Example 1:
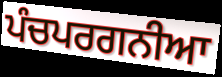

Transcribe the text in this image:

ਪੰਚਪਰਗਨੀਆ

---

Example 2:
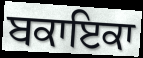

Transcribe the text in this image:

ਬਕਾਇਕਾ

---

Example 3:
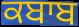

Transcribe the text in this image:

ਕਬਾਬ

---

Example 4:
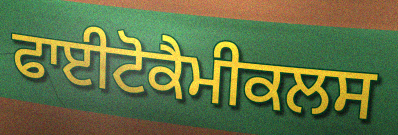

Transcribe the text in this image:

ਫਾਈਟੋਕੈਮੀਕਲਸ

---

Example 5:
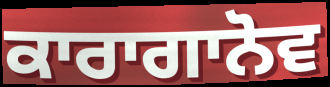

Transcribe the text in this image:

ਕਾਰਾਗਾਨੋਵ